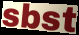
sbst